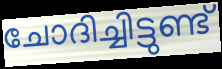
ചോദിച്ചിട്ടുണ്ട്